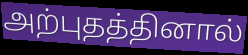
அற்புதத்தினால்